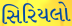
સિરિયલો